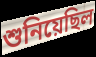
শুনিয়েছিল